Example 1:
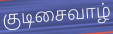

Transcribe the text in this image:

குடிசைவாழ்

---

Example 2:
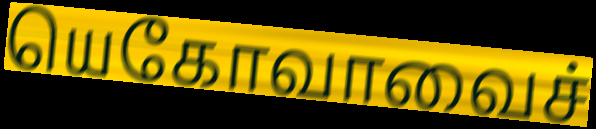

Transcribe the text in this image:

யெகோவாவைச்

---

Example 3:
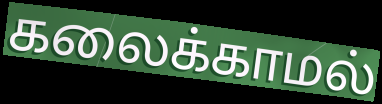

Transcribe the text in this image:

கலைக்காமல்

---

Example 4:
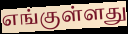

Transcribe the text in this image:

எங்குள்ளது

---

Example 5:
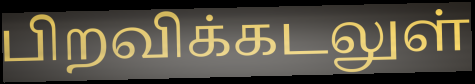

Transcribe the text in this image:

பிறவிக்கடலுள்